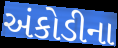
અંકોડીના